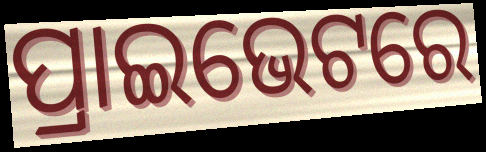
ପ୍ରାଇଭେଟରେ